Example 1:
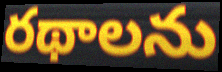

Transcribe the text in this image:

రథాలను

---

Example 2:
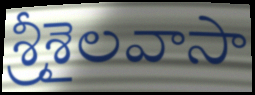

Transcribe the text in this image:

శ్రీశైలవాసా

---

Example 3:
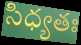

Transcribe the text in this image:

సిధ్యతః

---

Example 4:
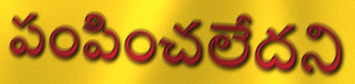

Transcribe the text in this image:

పంపించలేదని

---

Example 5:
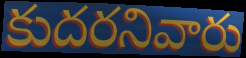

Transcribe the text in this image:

కుదరనివారు